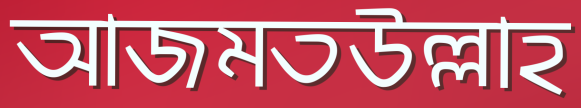
আজমতউল্লাহ